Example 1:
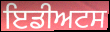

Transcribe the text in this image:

ਇਡੀਅਟਸ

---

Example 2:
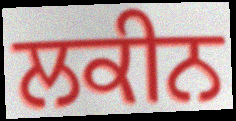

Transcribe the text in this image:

ਲਕੀਨ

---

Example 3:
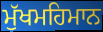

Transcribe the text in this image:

ਮੁੱਖਮਹਿਮਾਨ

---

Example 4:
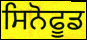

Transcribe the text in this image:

ਸਿਨੋਫੂਡ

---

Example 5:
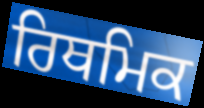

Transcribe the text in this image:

ਰਿਥਮਿਕ